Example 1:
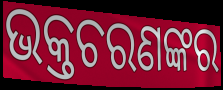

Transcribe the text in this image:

ଭକ୍ତଚରଣଙ୍କର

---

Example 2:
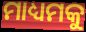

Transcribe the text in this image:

ମାଧ୍ୟମକୁ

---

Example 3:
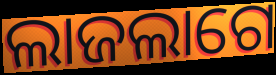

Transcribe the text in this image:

ଲାଜଲାଗେ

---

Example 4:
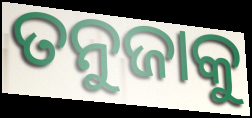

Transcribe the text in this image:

ତନୁଜାକୁ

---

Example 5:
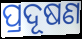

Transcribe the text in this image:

ପ୍ରଦୂଷଣ